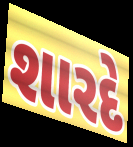
શારદે